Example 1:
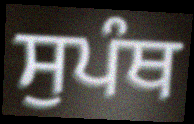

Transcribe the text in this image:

ਸੁਪੰਥ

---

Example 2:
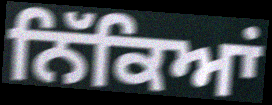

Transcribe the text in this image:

ਨਿੱਕਿਆਂ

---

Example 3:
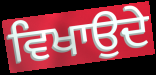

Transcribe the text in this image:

ਵਿਖਾਉਦੇ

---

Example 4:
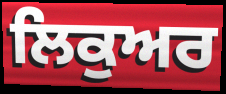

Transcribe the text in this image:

ਲਿਕੁਅਰ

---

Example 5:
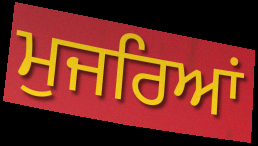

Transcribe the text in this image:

ਮੁਜਰਿਆਂ